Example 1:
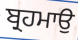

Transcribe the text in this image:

ਬ੍ਰਹਮਾਉ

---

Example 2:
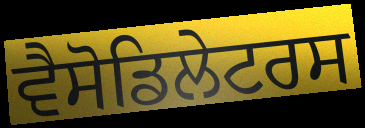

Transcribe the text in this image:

ਵੈਸੋਡਿਲੇਟਰਸ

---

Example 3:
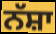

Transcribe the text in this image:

ਨੱਸ਼ਾ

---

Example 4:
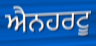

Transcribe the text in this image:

ਐਨਹਰਟੂ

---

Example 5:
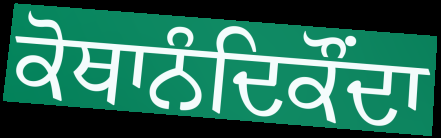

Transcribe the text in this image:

ਕੋਥਾਨੰਦਿਕੌਂਦਾ